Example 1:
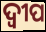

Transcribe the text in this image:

ଦ୍ବୀପ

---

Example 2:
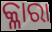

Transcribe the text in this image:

କ୍ଳାରା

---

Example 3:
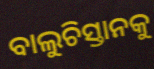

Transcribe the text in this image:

ବାଲୁଚିସ୍ତାନକୁ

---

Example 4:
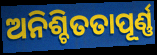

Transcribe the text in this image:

ଅନିଶ୍ଚିତତାପୂର୍ଣ୍ଣ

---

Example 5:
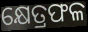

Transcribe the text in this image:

କ୍ଷେତ୍ରଫଳ